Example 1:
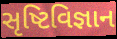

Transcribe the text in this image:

સૃષ્ટિવિજ્ઞાન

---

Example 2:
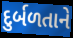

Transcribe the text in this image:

દુર્બળતાને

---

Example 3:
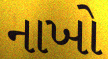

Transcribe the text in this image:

નાખો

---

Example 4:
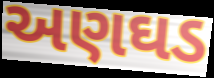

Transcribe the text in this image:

અણઘડ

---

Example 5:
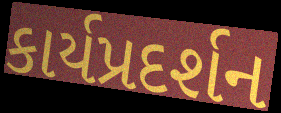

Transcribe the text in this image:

કાર્યપ્રદર્શન